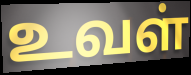
உவள்